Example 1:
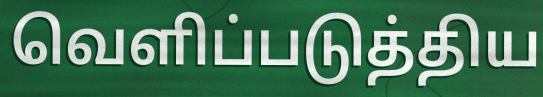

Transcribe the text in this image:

வெளிப்படுத்திய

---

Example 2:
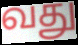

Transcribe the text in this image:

வது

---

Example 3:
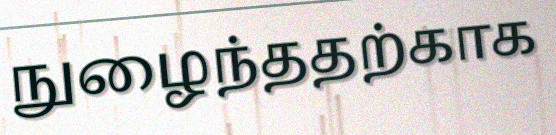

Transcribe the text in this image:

நுழைந்ததற்காக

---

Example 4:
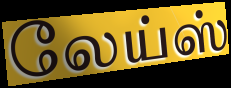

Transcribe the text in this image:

லேய்ஸ்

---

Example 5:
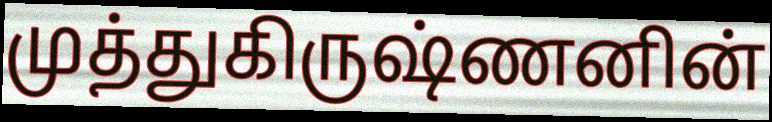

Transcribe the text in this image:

முத்துகிருஷ்ணனின்